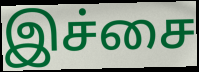
இச்சை